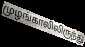
முழங்காலிலிருந்து